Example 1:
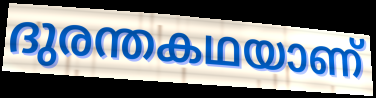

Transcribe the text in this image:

ദുരന്തകഥയാണ്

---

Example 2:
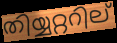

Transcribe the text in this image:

തിയ്യറ്ററില്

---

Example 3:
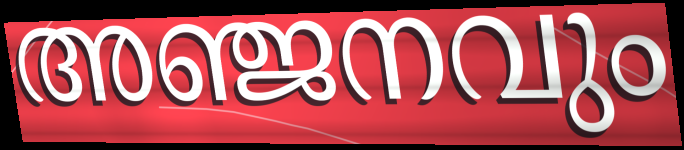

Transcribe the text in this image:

അഞ്ജനവും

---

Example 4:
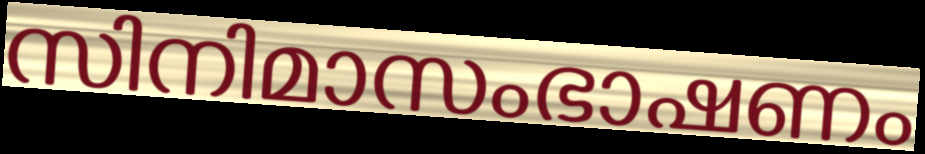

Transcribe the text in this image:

സിനിമാസംഭാഷണം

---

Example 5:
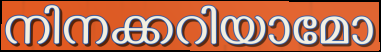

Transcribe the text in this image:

നിനക്കറിയാമോ